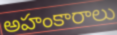
అహంకారాలు